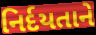
નિર્દયતાને